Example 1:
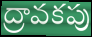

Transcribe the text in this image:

ద్రావకపు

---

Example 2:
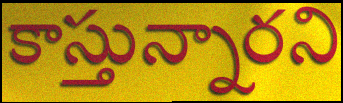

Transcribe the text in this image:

కాస్తున్నారని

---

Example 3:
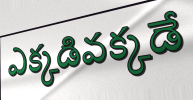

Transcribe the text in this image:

ఎక్కడివక్కడే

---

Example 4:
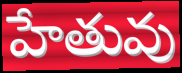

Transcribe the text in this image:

హేతువు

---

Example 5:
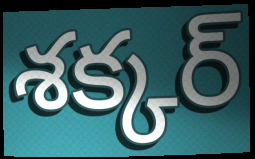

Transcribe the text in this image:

శక్కర్